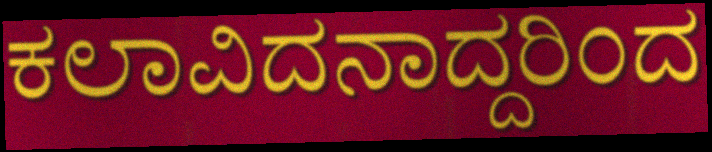
ಕಲಾವಿದನಾದ್ದರಿಂದ